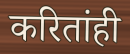
करितांही